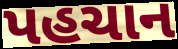
પહચાન